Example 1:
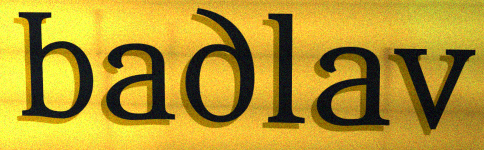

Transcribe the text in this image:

badlav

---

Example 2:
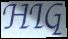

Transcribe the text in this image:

HIG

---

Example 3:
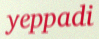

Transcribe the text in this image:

yeppadi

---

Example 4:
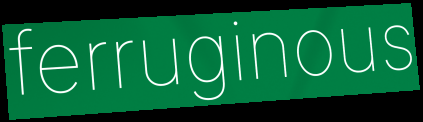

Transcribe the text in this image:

ferruginous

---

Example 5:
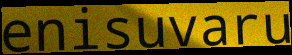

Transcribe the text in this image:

enisuvaru